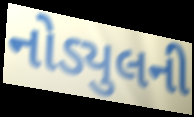
નોડ્યુલની